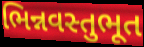
ભિન્નવસ્તુભૂત